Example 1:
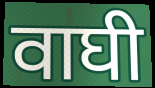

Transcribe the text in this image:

वाघी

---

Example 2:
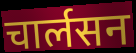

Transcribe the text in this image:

चार्लसन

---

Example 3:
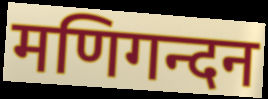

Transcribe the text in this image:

मणिगन्दन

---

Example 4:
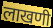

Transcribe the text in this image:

लाखणी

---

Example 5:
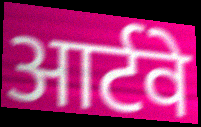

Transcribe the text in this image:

आर्टवे